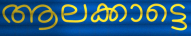
ആലക്കാട്ടെ